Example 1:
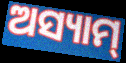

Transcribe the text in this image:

ଅସ୍ୟାମ୍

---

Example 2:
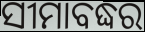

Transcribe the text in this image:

ସୀମାବଦ୍ଧର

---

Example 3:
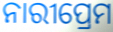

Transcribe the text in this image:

ନାରୀପ୍ରେମ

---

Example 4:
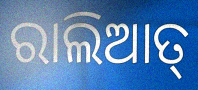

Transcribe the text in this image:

ରାଲିଆତ୍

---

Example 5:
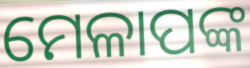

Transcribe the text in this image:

ମେଳାପଙ୍କ